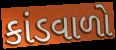
કાંડવાળો